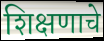
शिक्षणाचे